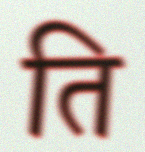
ति